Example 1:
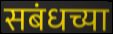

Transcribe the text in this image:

सबंधच्या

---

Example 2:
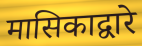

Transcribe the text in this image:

मासिकाद्वारे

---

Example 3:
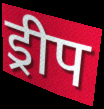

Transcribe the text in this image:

ड्रीप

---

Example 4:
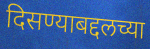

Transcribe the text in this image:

दिसण्याबद्दलच्या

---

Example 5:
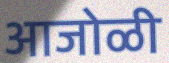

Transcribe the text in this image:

आजोळी